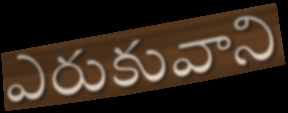
ఎరుకువాని